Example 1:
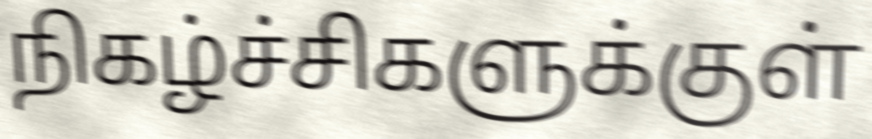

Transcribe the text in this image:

நிகழ்ச்சிகளுக்குள்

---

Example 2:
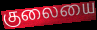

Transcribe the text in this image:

குலையை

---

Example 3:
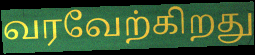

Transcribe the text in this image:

வரவேற்கிறது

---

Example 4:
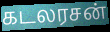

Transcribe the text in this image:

கடலரசன்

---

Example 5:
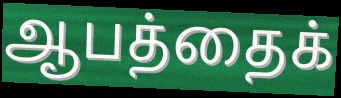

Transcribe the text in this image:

ஆபத்தைக்